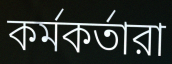
কর্মকর্তারা